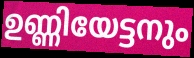
ഉണ്ണിയേട്ടനും